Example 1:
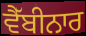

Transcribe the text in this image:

ਵੈੱਬੀਨਾਰ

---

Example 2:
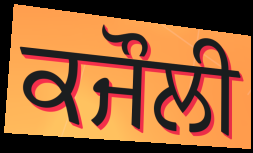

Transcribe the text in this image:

ਕਜੌਲੀ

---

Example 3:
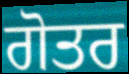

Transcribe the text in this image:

ਗੋਤਰ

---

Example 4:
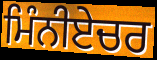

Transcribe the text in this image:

ਮਿੰਨੀਏਚਰ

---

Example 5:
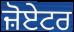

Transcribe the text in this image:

ਜ਼ੋਏਟਰ